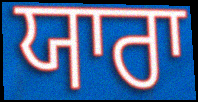
ਯਾਰਾ